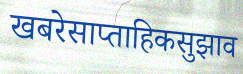
खबरेसाप्ताहिकसुझाव